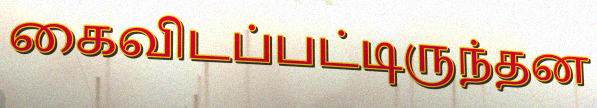
கைவிடப்பட்டிருந்தன